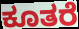
ಕೂತರೆ